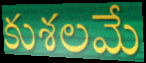
కుశలమే